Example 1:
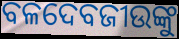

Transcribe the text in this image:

ବଳଦେବଜୀଉଙ୍କୁ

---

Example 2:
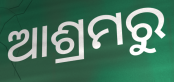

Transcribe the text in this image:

ଆଶ୍ରମରୁ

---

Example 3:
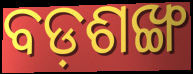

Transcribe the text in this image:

ବଡ଼ଶଙ୍ଖ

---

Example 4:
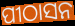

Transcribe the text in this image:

ପୀଠାସନ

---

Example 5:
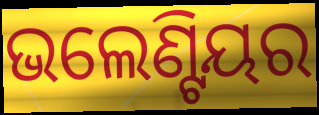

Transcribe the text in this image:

ଭଲେଣ୍ଟିୟର